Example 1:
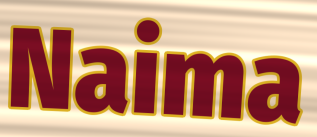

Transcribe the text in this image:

Naima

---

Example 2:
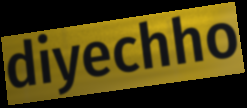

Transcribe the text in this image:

diyechho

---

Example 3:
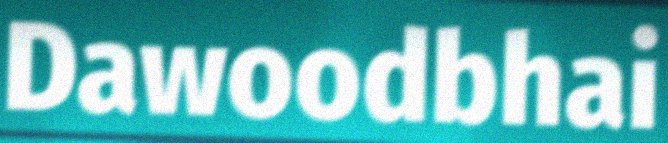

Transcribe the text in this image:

Dawoodbhai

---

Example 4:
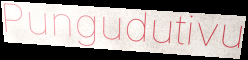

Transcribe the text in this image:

Pungudutivu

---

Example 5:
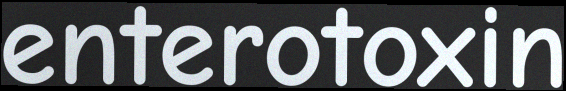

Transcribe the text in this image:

enterotoxin